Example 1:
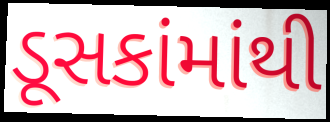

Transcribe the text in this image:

ડૂસકાંમાંથી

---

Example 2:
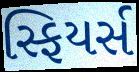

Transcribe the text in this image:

સ્ફિયર્સ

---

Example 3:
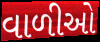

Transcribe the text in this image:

વાળીઓ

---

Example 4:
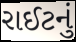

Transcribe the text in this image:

રાઈટનું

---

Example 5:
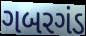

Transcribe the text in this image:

ગબરગંડ